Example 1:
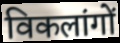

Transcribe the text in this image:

विकलांगों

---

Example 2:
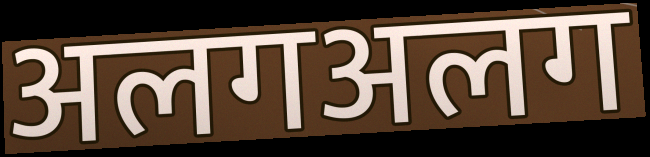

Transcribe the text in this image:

अलगअलग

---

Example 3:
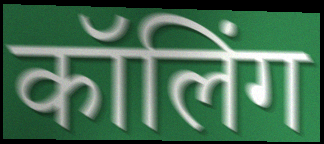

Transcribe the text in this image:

कॉलिंग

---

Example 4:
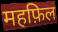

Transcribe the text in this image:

महफ़िल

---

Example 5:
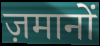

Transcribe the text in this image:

ज़मानों